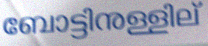
ബോട്ടിനുള്ളില്